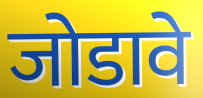
जोडावे